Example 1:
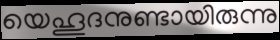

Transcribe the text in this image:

യെഹൂദനുണ്ടായിരുന്നു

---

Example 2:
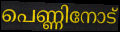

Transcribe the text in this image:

പെണ്ണിനോട്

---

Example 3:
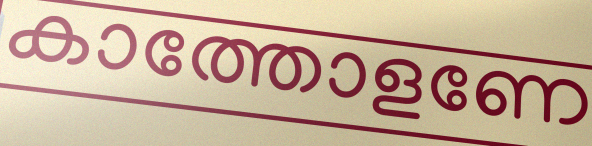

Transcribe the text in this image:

കാത്തോളണേ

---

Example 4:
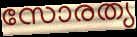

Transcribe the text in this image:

സോരത്യ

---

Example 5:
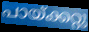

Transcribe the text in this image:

പായ്ക്കറ്റു